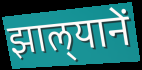
झाल्यानें